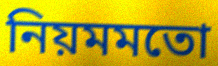
নিয়মমতো